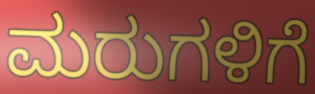
ಮರುಗಳಿಗೆ